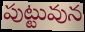
పుట్టువున